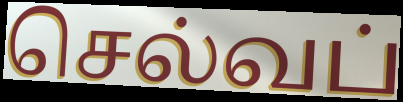
செல்வப்